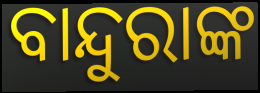
ବାନ୍ଦୁରାଙ୍କ